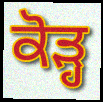
ਕੋੜ੍ਹ